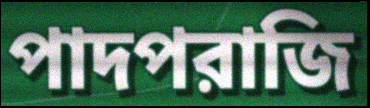
পাদপরাজি